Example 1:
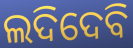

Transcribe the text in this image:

ଲଦିଦେବି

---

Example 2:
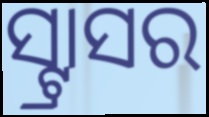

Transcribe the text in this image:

ସ୍ଟ୍ରାସର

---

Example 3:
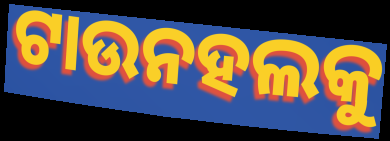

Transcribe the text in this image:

ଟାଉନହଲକୁ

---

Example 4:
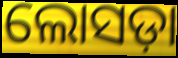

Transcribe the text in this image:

ଲୋସଡ଼ା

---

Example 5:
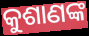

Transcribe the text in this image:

କୁଶାଣଙ୍କ